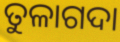
ତୁଳାଗଦା